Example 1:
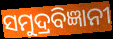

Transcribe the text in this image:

ସମୁଦ୍ରବିଜ୍ଞାନୀ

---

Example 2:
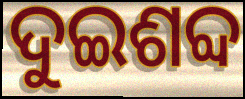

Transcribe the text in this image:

ଦୁଇଶବ୍ଦ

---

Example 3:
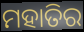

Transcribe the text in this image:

ମହାତିର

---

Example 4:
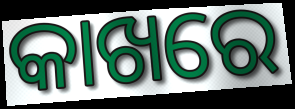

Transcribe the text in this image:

କାଖରେ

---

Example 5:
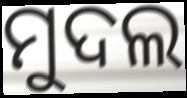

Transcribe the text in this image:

ମୁଦଲ